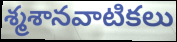
శ్మశానవాటికలు